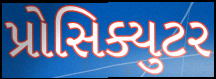
પ્રોસિક્યુટર